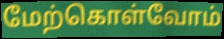
மேற்கொள்வோம்